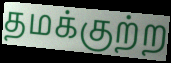
தமக்குற்ற